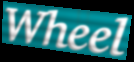
Wheel